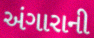
અંગારાની